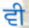
ਵੀ